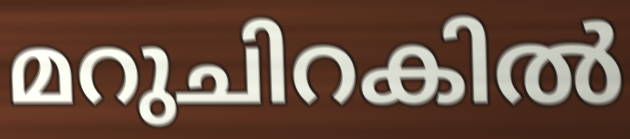
മറുചിറകിൽ